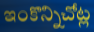
ఇంకొన్నిచోట్ల